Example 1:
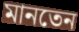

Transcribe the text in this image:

মানতেন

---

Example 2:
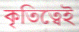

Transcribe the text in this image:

কৃতিত্বেই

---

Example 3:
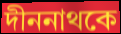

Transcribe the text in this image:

দীননাথকে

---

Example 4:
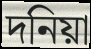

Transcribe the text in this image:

দনিয়া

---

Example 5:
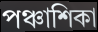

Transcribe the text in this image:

পঞ্চাশিকা